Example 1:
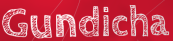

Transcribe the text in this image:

Gundicha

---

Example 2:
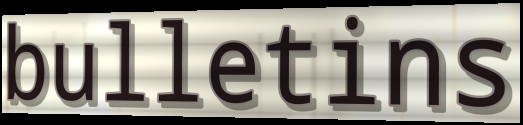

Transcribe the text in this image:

bulletins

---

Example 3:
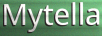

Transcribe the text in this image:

Mytella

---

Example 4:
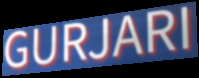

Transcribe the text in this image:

GURJARI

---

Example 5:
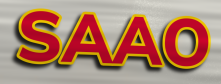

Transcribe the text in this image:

SAAO